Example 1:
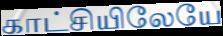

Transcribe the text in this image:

காட்சியிலேயே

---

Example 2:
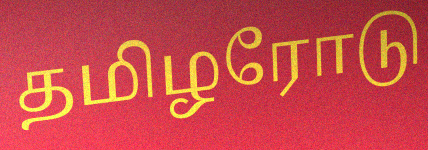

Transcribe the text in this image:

தமிழரோடு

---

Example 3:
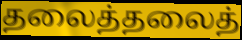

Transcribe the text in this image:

தலைத்தலைத்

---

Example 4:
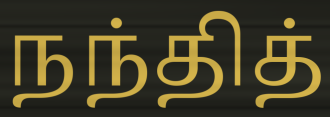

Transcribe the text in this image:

நந்தித்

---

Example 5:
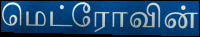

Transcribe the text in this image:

மெட்ரோவின்